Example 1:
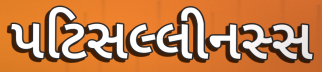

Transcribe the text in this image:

પટિસલ્લીનસ્સ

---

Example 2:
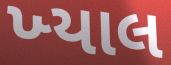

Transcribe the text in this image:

ખ્‍યાલ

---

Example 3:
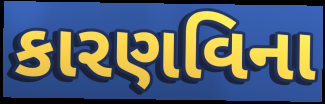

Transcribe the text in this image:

કારણવિના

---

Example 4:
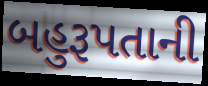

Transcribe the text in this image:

બહુરૂપતાની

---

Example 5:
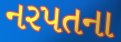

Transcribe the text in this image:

નરપતના